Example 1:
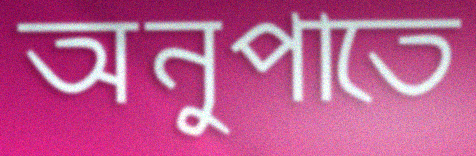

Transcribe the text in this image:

অনুপাতে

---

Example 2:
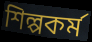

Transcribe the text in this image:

শিল্পকৰ্ম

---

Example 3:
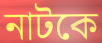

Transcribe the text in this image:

নাটকে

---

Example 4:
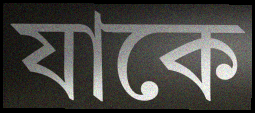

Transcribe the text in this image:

যাকে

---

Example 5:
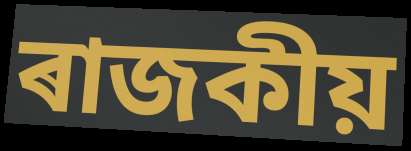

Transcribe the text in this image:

ৰাজকীয়